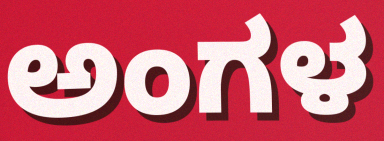
ಅಂಗಳ